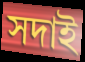
সদাই